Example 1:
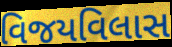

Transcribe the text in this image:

વિજયવિલાસ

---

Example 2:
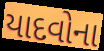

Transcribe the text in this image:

યાદવોના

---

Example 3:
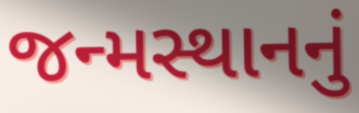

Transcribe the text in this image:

જન્મસ્થાનનું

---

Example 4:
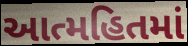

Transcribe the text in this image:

આત્મહિતમાં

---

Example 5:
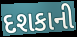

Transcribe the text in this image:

દશકાની